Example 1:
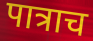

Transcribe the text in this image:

पात्राच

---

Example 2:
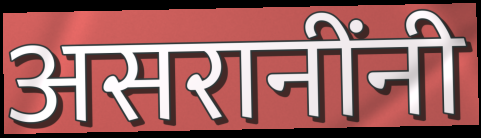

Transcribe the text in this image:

असरानींनी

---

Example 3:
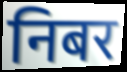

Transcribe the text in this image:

निबर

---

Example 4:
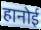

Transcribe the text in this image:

हानोई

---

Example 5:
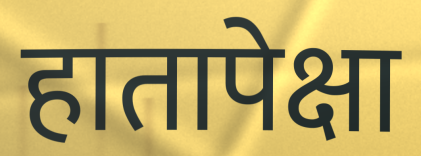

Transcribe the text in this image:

हातापेक्षा